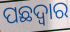
ପଛଦ୍ୱାର